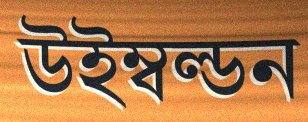
উইম্বল্ডন